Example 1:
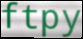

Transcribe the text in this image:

ftpy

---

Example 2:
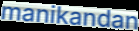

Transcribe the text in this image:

manikandan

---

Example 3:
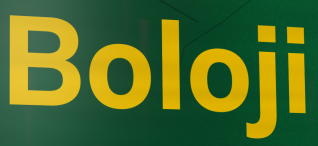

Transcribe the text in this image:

Boloji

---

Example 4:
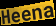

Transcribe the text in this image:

Heena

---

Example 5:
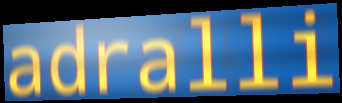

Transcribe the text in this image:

adralli